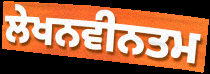
ਲੇਖਨਵੀਨਤਮ